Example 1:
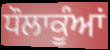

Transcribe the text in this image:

ਧੌਲਾਕੂੰਆਂ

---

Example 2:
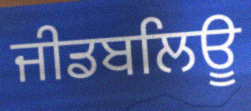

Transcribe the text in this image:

ਜੀਡਬਲਿਊ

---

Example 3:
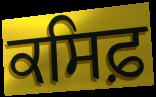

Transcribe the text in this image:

ਕਸਿਫ਼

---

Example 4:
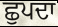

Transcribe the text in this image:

ਛੁਪਦਾ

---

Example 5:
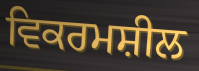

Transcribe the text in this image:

ਵਿਕਰਮਸ਼ੀਲ